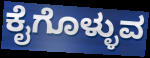
ಕೈಗೊಳ್ಳುವ